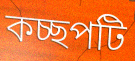
কচ্ছপটি